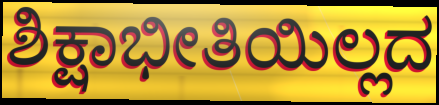
ಶಿಕ್ಷಾಭೀತಿಯಿಲ್ಲದ